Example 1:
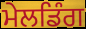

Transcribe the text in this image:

ਮੇਲਡਿੰਗ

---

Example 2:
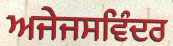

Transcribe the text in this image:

ਅਜੇਜਸਵਿੰਦਰ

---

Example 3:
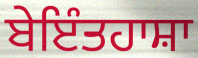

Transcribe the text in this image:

ਬੇਇੰਤਹਾਸ਼ਾ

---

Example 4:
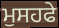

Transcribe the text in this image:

ਮੁਸਹਫੇ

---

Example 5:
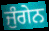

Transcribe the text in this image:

ਜੁੰਗੇਨ